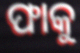
ଫାକୁ